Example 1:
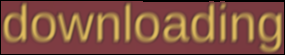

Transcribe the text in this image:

downloading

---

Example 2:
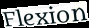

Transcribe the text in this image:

Flexion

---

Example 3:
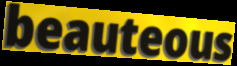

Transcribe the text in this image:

beauteous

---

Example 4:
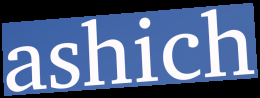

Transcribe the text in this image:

ashich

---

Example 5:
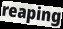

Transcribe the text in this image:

reaping